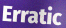
Erratic